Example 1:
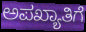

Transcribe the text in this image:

ಅಪಖ್ಯಾತಿಗೆ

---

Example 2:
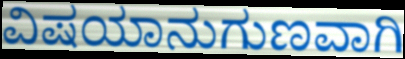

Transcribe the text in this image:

ವಿಷಯಾನುಗುಣವಾಗಿ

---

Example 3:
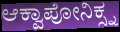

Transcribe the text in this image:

ಆಕ್ವಾಪೋನಿಕ್ಸ್ನ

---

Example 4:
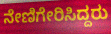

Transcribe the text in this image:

ನೇಣಿಗೇರಿಸಿದ್ದರು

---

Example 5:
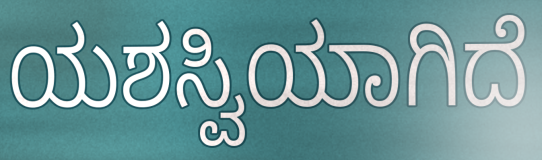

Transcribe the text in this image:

ಯಶಸ್ವಿಯಾಗಿದೆ